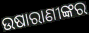
ଉଷାରାଣୀଙ୍କର